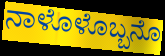
ನಾಳೊಳೊಬ್ಬನೊ